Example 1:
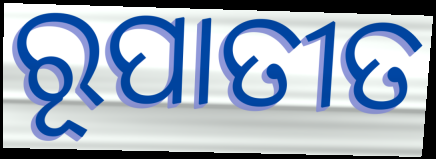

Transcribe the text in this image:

ରୂପାତୀତ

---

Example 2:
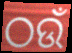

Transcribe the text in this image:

ଠଉଁ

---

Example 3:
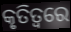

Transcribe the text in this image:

କୃତିତ୍ୱରେ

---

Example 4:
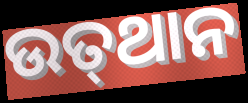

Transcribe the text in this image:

ଉତ୍‌ଥାନ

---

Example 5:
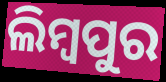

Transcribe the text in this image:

ଲିମ୍ବପୁର